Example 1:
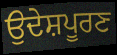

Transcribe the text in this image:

ਉਦੇਸ਼ਪੂਰਣ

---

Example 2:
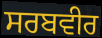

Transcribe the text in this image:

ਸਰਬਵੀਰ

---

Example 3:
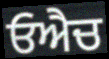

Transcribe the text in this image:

ਓਐਚ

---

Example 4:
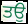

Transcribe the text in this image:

ਤਉ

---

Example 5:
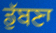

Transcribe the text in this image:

ਡੁੱਬਣਾ